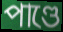
পাণ্ডে